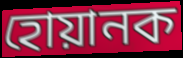
হোয়ানক